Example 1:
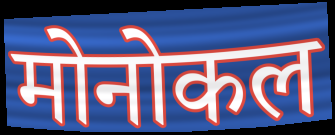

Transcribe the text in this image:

मोनोकल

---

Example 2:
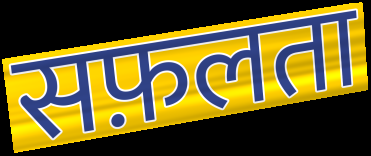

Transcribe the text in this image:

सफ़लता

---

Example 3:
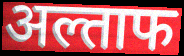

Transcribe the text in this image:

अल्ताफ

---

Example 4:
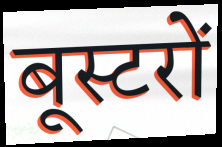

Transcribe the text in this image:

बूस्टरों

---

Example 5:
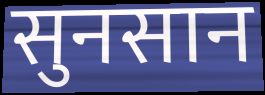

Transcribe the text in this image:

सुनसान